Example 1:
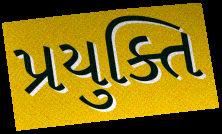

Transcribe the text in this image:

પ્રયુક્તિ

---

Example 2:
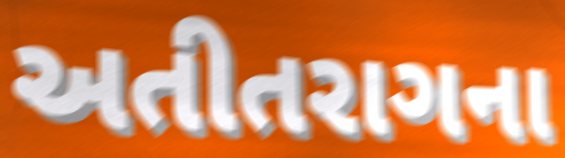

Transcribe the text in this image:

અતીતરાગના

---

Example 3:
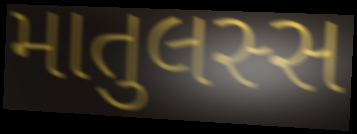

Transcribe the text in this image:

માતુલસ્સ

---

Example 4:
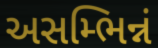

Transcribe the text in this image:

અસમ્ભિન્નં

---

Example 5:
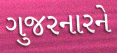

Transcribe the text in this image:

ગુજરનારને